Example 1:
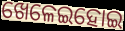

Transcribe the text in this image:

ଖେଳେଇହୋଇ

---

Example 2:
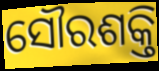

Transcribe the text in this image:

ସୌରଶକ୍ତି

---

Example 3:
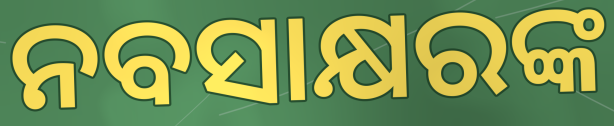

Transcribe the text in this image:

ନବସାକ୍ଷରଙ୍କ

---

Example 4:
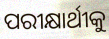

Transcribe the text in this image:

ପରୀକ୍ଷାର୍ଥୀକୁ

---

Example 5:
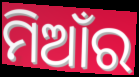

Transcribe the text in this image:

ମିଆଁର